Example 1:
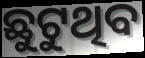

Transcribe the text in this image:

ଛୁଟୁଥିବ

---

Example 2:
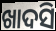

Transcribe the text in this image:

ଖାଦସି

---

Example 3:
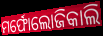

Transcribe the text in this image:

ମର୍ଫୋଲୋଜିକାଲି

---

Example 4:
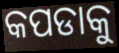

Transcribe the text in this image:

କପଡାକୁ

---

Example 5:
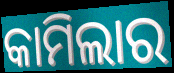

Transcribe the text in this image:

କାମିଲାର